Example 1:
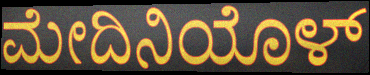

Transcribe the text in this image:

ಮೇದಿನಿಯೊಳ್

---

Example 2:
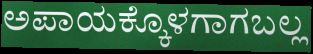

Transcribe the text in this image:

ಅಪಾಯಕ್ಕೊಳಗಾಗಬಲ್ಲ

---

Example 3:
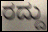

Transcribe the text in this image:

ರದ್ದು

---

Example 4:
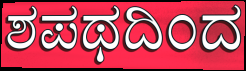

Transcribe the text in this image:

ಶಪಥದಿಂದ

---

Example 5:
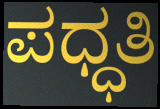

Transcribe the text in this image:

ಪಧ್ಧತಿ